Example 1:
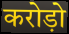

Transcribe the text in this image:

करोड़ो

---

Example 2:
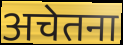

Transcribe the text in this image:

अचेतना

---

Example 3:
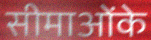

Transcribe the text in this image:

सीमाओंके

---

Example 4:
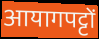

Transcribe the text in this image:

आयागपट्टों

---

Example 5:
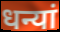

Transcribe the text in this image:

धन्यां